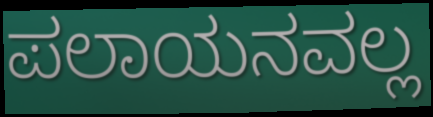
ಪಲಾಯನವಲ್ಲ